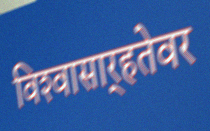
विश्वासार्हतेवर